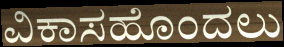
ವಿಕಾಸಹೊಂದಲು